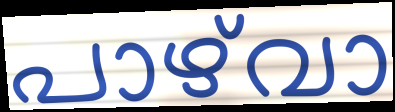
പാഴ്‌വാ